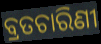
ବ୍ରତଚାରିଣୀ